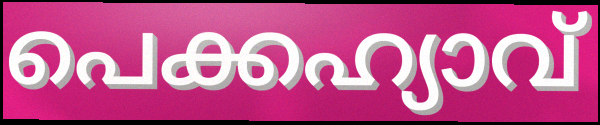
പെക്കഹ്യാവ്